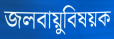
জলবায়ুবিষয়ক